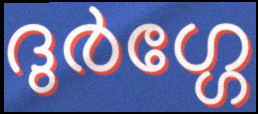
ദുർഗ്ഗേ